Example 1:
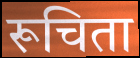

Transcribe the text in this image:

रूचिता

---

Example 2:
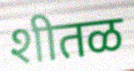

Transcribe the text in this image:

शीतळ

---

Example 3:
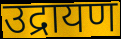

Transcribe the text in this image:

उद्रायण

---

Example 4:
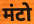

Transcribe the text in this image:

मंटो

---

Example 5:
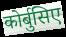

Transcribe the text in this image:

कोर्बुसिए